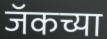
जॅकच्या